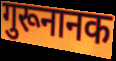
गुरूनानक